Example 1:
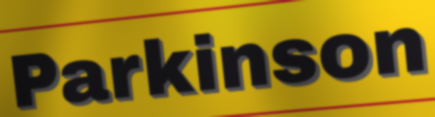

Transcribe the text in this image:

Parkinson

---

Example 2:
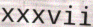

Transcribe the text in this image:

xxxvii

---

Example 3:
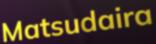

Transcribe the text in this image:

Matsudaira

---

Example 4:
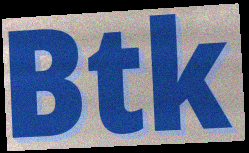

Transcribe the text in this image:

Btk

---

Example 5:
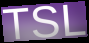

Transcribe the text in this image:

TSL